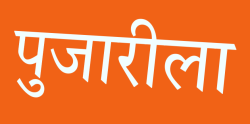
पुजारीला